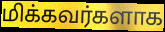
மிக்கவர்களாக